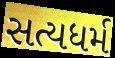
સત્યધર્મ